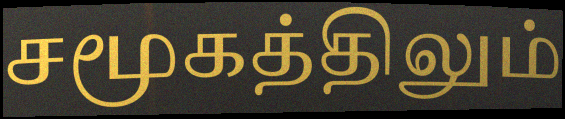
சமூகத்திலும்